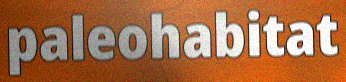
paleohabitat